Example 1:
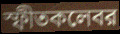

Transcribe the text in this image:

স্ফীতকলেবর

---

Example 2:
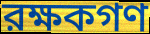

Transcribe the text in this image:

রক্ষকগণ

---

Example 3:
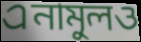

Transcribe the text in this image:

এনামুলও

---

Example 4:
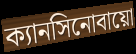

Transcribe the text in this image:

ক্যানসিনোবায়ো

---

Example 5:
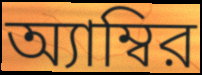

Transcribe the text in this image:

অ্যাম্বির